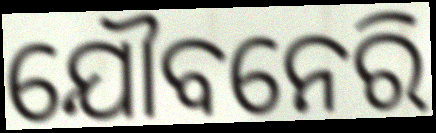
ଯୌବନେରି